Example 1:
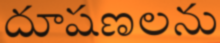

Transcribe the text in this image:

దూషణలను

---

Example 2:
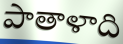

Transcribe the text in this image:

పాతాళాది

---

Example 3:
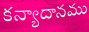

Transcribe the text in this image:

కన్యాదానము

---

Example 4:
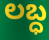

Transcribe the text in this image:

లబ్ధ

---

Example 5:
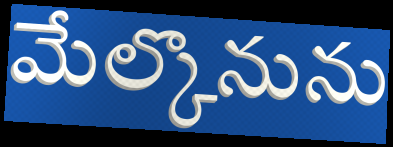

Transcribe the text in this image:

మేల్కొనును